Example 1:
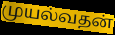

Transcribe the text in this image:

முயல்வதன்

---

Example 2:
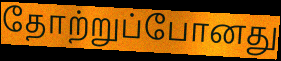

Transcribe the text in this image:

தோற்றுப்போனது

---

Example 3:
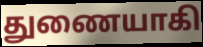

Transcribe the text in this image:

துணையாகி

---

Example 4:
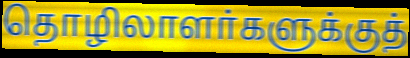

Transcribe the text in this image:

தொழிலாளர்களுக்குத்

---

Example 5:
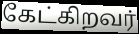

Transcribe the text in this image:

கேட்கிறவர்